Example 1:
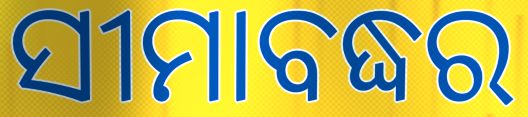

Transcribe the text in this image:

ସୀମାବଦ୍ଧର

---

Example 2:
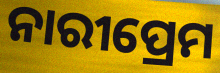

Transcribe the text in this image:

ନାରୀପ୍ରେମ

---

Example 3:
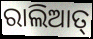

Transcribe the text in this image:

ରାଲିଆତ୍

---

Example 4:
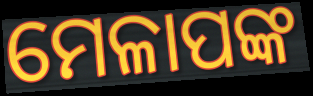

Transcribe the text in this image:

ମେଳାପଙ୍କ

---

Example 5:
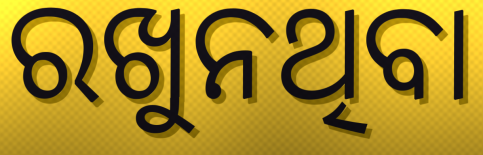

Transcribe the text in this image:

ରଖୁନଥିବା